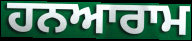
ਹਨਆਰਾਮ